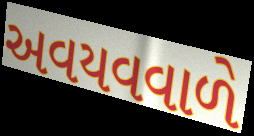
અવયવવાળે